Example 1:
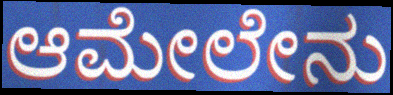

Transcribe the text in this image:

ಆಮೇಲೇನು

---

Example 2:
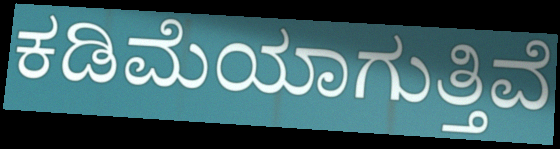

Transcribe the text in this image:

ಕಡಿಮೆಯಾಗುತ್ತಿವೆ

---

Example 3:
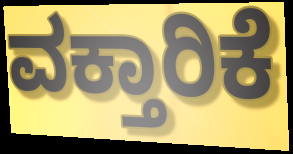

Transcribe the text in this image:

ವಕ್ತಾರಿಕೆ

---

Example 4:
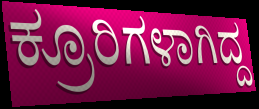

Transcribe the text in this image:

ಕ್ರೂರಿಗಳಾಗಿದ್ದ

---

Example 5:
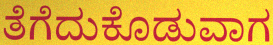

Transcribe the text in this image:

ತೆಗೆದುಕೊಡುವಾಗ